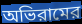
অভিরামের